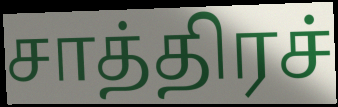
சாத்திரச்